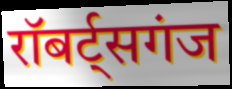
रॉबर्ट्सगंज